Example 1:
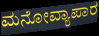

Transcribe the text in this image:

ಮನೋವ್ಯಾಪಾರ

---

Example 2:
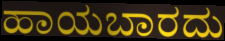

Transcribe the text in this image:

ಹಾಯಬಾರದು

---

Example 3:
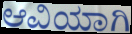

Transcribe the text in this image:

ಆವಿಯಾಗಿ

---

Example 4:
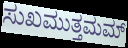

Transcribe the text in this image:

ಸುಖಮುತ್ತಮಮ್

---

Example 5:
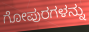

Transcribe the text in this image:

ಗೋಪುರಗಳನ್ನು